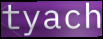
tyach